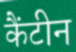
कैंटीन